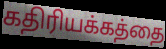
கதிரியக்கத்தை